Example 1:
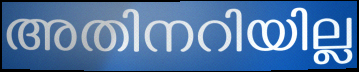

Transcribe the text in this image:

അതിനറിയില്ല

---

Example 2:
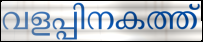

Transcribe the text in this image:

വളപ്പിനകത്ത്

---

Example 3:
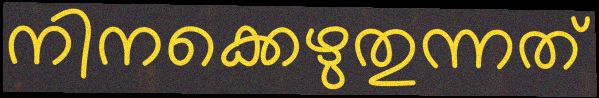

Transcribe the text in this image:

നിനക്കെഴുതുന്നത്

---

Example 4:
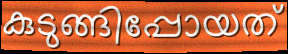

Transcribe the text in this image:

കുടുങ്ങിപ്പോയത്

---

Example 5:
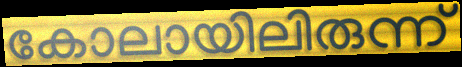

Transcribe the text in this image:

കോലായിലിരുന്ന്